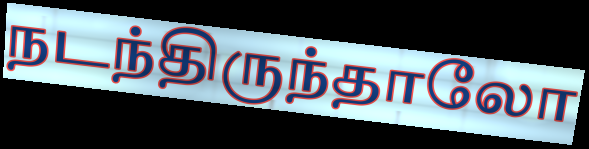
நடந்திருந்தாலோ